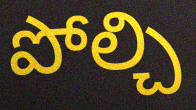
పోల్చి